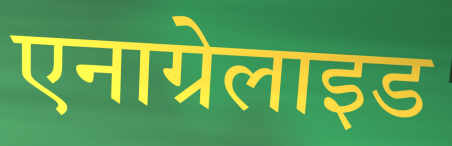
एनाग्रेलाइड